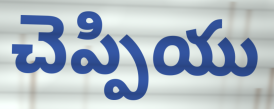
చెప్పియు